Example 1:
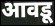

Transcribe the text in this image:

आवडू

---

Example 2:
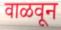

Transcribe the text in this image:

वाळवून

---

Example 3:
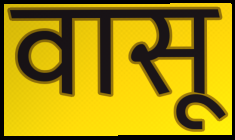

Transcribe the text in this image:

वासू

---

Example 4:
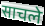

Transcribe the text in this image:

साचले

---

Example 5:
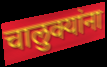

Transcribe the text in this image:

चालुक्यांना